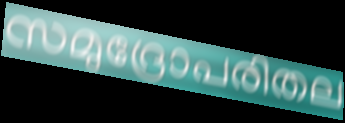
സമുദ്രോപരിതല